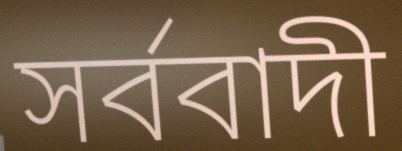
সর্ববাদী